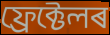
ফ্ৰেক্টেলৰ